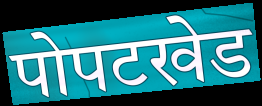
पोपटखेड